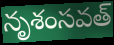
నృశంసవత్